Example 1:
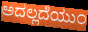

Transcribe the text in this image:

ಅದಲ್ಲದೆಯುಂ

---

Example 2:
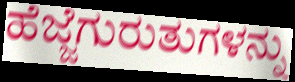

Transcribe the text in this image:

ಹೆಜ್ಜೆಗುರುತುಗಳನ್ನು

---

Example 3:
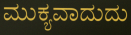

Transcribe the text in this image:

ಮುಕ್ಯವಾದುದು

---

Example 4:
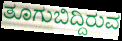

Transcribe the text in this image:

ತೂಗುಬಿದ್ದಿರುವ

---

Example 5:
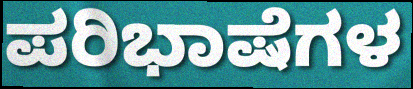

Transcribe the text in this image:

ಪರಿಭಾಷೆಗಳ